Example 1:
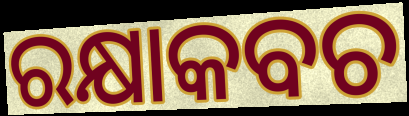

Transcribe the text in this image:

ରକ୍ଷାକବଚ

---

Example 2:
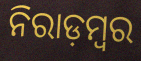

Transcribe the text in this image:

ନିରାଡ଼ମ୍ବର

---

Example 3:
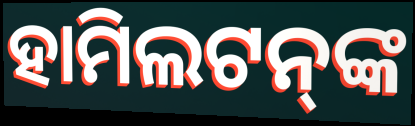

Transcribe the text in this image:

ହାମିଲଟନ୍‍ଙ୍କ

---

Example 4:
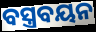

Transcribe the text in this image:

ବସ୍ତ୍ରବୟନ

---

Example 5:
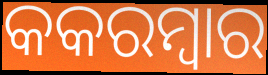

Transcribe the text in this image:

କକରମ୍ବାର